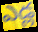
ఎడ్ల